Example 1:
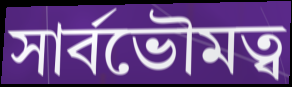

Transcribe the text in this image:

সার্বভৌমত্ব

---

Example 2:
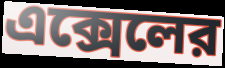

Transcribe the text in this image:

এক্সেলের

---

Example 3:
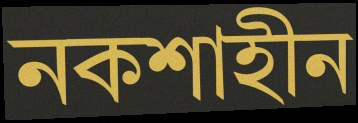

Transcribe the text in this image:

নকশাহীন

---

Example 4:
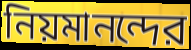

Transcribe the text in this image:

নিয়মানন্দের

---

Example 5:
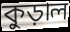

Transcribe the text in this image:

কুড়াল